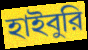
হাইবুরি